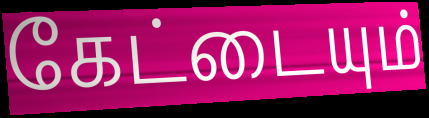
கேட்டையும்